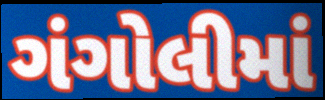
ગંગોલીમાં